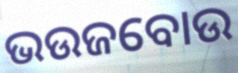
ଭଉଜବୋଉ